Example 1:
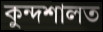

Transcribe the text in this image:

কুন্দশালত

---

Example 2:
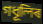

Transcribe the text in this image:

গধূলিৰ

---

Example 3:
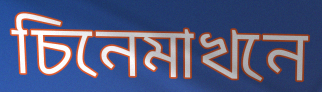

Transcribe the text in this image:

চিনেমাখনে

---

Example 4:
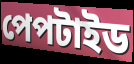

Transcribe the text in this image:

পেপটাইড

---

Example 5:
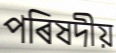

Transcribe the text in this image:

পৰিষদীয়